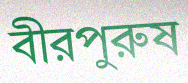
বীরপুরুষ